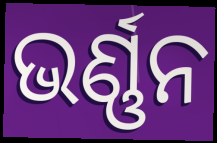
ଭର୍ଣ୍ଣନ